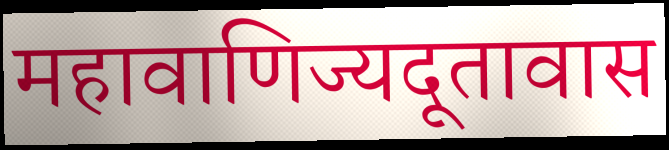
महावाणिज्यदूतावास